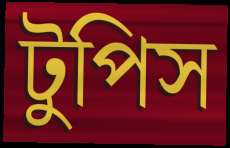
টুপিস